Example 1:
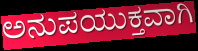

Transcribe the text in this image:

ಅನುಪಯುಕ್ತವಾಗಿ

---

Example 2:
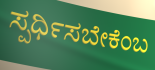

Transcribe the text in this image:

ಸ್ಪರ್ಧಿಸಬೇಕೆಂಬ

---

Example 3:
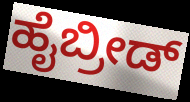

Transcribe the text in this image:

ಹೈಬ್ರೀಡ್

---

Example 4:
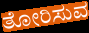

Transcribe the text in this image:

ತೋರಿಸುವ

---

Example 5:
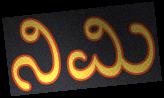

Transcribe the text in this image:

ನಿಮಿ